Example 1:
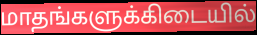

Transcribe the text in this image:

மாதங்களுக்கிடையில்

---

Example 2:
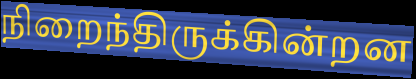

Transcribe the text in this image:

நிறைந்திருக்கின்றன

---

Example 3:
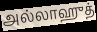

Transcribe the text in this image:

அல்லாஹுத்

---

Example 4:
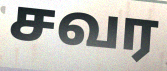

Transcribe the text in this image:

சவர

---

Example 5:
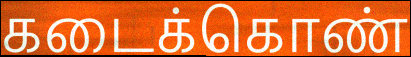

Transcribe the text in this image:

கடைக்கொண்